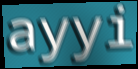
ayyi